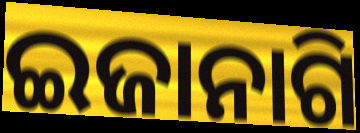
ଇଜାନାଗି